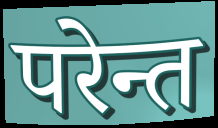
परेन्त